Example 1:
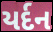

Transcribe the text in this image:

યર્દન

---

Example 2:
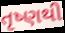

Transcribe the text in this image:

તૃષ્ણથી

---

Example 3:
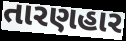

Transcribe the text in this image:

તારણહાર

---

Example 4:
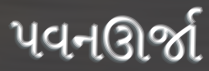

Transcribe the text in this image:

પવનઊર્જા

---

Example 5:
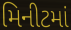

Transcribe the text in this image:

મિનીટમાં